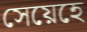
সেয়েহে